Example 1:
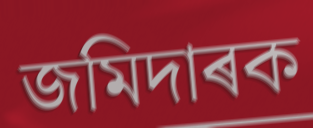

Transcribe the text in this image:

জমিদাৰক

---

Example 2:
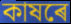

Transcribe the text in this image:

কাষৰে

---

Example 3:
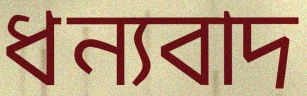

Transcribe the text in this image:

ধন্যবাদ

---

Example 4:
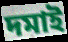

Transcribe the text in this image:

দমাই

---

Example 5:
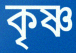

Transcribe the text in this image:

কৃষ্ণ